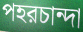
পহরচান্দা